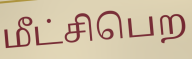
மீட்சிபெற